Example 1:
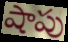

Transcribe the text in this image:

షాపు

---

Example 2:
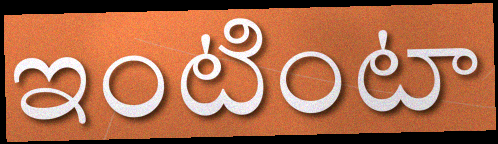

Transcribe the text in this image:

ఇంటింటా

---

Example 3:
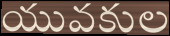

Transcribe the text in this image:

యువకుల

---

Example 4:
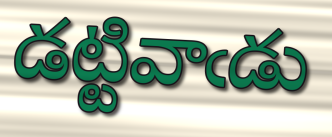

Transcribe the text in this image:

డట్టివాఁడు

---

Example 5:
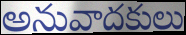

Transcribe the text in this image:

అనువాదకులు